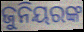
ଜୁନିୟରଙ୍କ